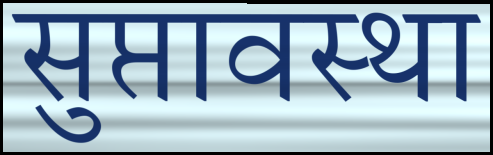
सुप्तावस्था